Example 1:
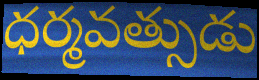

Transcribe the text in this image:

ధర్మవత్సుడు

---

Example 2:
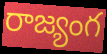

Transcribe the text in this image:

రాజ్యంగ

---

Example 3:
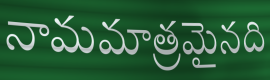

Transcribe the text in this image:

నామమాత్రమైనది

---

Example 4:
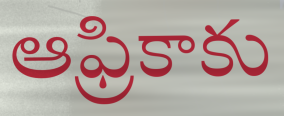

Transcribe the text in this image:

ఆఫ్రికాకు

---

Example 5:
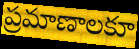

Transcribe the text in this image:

ప్రమాణాలకూ